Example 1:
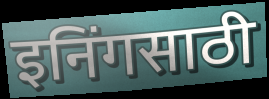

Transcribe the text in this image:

इनिंगसाठी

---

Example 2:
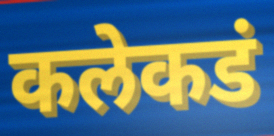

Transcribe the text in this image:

कलेकडं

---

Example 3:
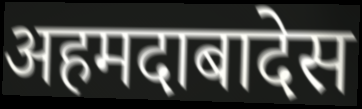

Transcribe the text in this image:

अहमदाबादेस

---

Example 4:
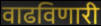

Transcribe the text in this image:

वाढविणारी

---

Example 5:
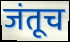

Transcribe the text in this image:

जंतूच